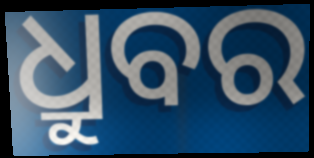
ଧ୍ରୁବର